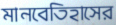
মানবেতিহাসের